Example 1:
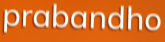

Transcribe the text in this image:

prabandho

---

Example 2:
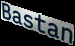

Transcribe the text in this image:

Bastan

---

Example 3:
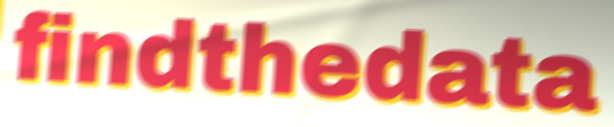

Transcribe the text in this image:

findthedata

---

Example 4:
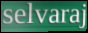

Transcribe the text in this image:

selvaraj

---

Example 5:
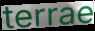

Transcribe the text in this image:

terrae